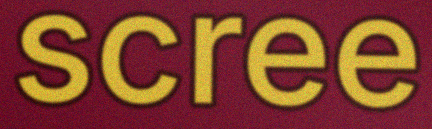
scree